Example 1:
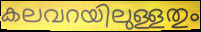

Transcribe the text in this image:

കലവറയിലുള്ളതും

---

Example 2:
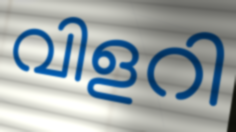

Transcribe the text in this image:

വിളറി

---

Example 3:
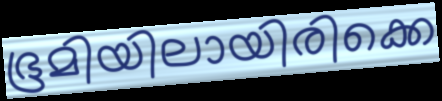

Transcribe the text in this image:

ഭൂമിയിലായിരിക്കെ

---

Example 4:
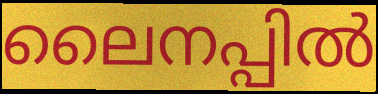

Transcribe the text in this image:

ലൈനപ്പിൽ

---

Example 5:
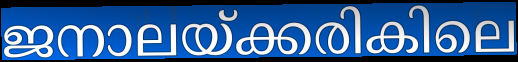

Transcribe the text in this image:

ജനാലയ്ക്കരികിലെ